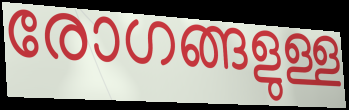
രോഗങ്ങളുള്ള